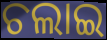
ଚଲାଇ